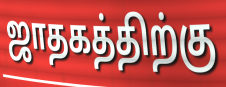
ஜாதகத்திற்கு